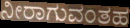
ನೀರಾಗುವಂತಹ